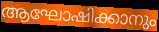
ആഘോഷിക്കാനും